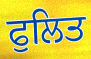
ਫੁਲਿਤ